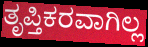
ತೃಪ್ತಿಕರವಾಗಿಲ್ಲ